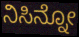
ನಿಸಿನ್ನೋ